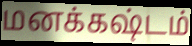
மனக்கஷ்டம்